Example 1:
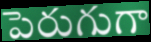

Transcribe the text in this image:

పెరుగుగా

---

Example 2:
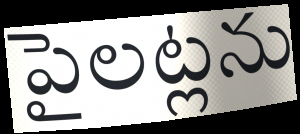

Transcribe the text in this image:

పైలట్లను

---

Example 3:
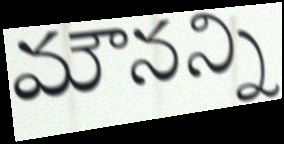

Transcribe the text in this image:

మౌనన్ని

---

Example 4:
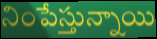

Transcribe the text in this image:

నింపేస్తున్నాయి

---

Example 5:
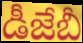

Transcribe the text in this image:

డీజేబీ